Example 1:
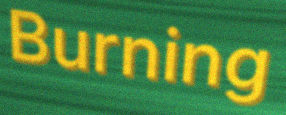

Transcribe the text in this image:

Burning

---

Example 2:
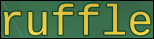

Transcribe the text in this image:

ruffle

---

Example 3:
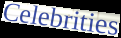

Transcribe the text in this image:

Celebrities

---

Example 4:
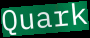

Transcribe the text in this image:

Quark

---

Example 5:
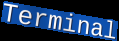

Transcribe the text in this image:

Terminal